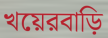
খয়েরবাড়ি